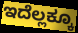
ಇದೆಲ್ಲಕ್ಕೂ